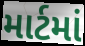
માર્ટમાં